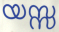
യസ്സ